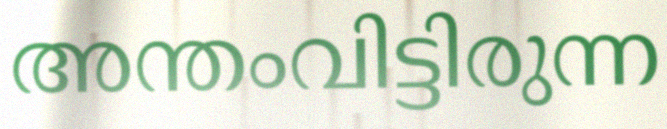
അന്തംവിട്ടിരുന്ന